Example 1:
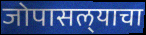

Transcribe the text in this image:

जोपासल्याचा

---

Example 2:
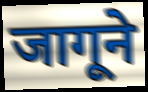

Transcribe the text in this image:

जागूने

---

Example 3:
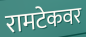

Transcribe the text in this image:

रामटेकवर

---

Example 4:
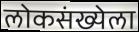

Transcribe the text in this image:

लोकसंख्येला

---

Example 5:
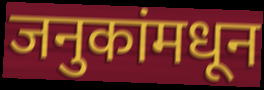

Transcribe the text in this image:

जनुकांमधून